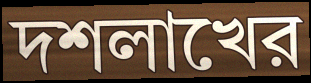
দশলাখের